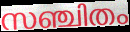
സഞ്ചിതം